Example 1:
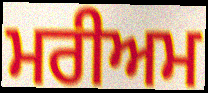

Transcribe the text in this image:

ਮਰੀਅਮ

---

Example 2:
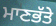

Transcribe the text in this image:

ਮਾਣਭੱਤੇ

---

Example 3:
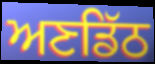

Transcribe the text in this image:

ਅਣਡਿੱਠ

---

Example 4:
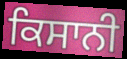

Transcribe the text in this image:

ਕਿਸਾਨੀ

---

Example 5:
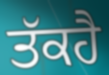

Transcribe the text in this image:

ਤੱਕਹੈ